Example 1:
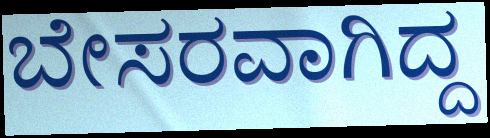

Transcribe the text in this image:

ಬೇಸರವಾಗಿದ್ದ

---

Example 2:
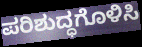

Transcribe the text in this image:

ಪರಿಶುದ್ಧಗೊಳಿಸಿ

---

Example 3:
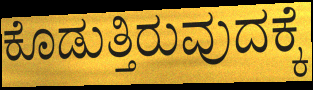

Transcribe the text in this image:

ಕೊಡುತ್ತಿರುವುದಕ್ಕೆ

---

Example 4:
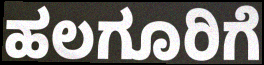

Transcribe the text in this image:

ಹಲಗೂರಿಗೆ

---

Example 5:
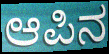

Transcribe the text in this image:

ಆಪಿನ